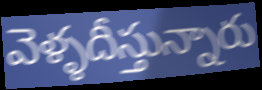
వెళ్ళదీస్తున్నారు